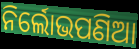
ନିର୍ଲୋଭପଣିଆ